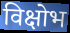
विक्षोभ